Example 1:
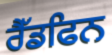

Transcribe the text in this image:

ਰੈੱਡਫਿਨ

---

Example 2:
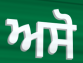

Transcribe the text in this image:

ਅਸੋ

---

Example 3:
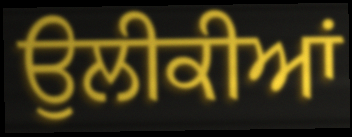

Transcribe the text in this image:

ਉਲੀਕੀਆਂ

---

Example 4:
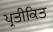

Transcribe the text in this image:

ਪ੍ਰਤੀਕਿਤ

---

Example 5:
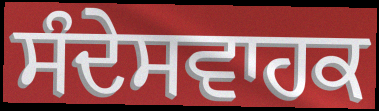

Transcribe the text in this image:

ਸੰਦੇਸਵਾਹਕ